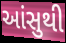
આંસુથી